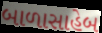
બાળાસાહેબ